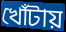
খোঁটায়